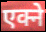
एक्ने